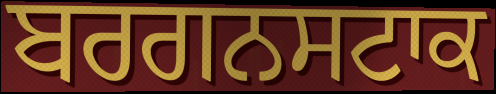
ਬਰਗਨਸਟਾਕ